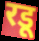
रडू